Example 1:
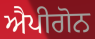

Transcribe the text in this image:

ਐਪੀਗੋਨ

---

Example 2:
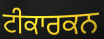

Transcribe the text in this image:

ਟੀਕਾਰਕਨ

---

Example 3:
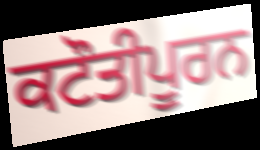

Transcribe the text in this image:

ਕਟੌਤੀਪੂਰਨ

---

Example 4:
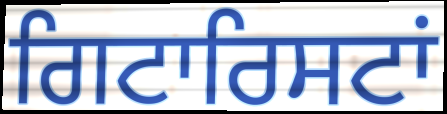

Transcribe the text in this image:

ਗਿਟਾਰਿਸਟਾਂ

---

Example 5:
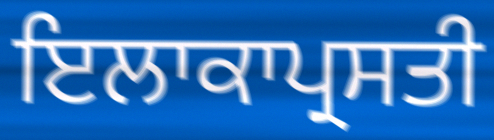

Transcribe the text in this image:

ਇਲਾਕਾਪ੍ਰਸਤੀ